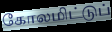
கோலமிட்டுப்